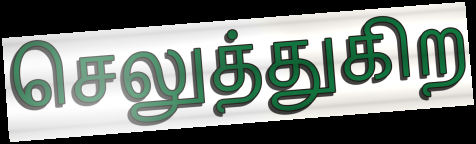
செலுத்துகிற